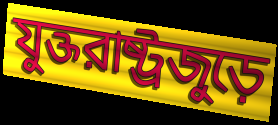
যুক্তরাষ্ট্রজুড়ে